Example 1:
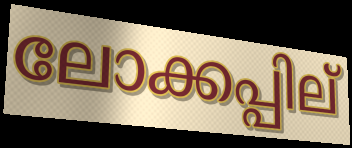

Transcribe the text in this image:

ലോക്കപ്പില്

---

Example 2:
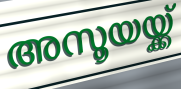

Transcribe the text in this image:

അസൂയയ്ക്ക്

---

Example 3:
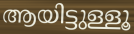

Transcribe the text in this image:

ആയിട്ടുള്ളൂ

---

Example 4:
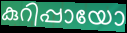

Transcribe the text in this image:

കുറിപ്പായോ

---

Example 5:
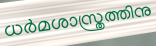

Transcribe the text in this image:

ധർമശാസ്ത്രത്തിനു